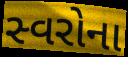
સ્વરોના